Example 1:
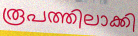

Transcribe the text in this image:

രൂപത്തിലാക്കി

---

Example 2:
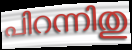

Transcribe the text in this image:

പിറന്നിതു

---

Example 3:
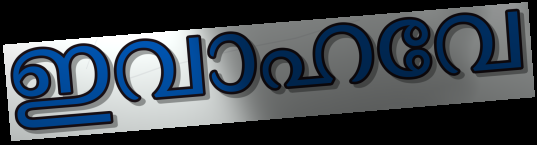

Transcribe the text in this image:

ഇവാഹവേ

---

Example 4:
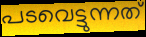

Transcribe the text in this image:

പടവെട്ടുന്നത്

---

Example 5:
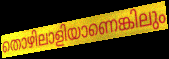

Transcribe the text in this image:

തൊഴിലാളിയാണെങ്കിലും